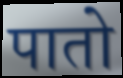
पातो